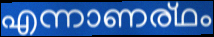
എന്നാണര്ഥം